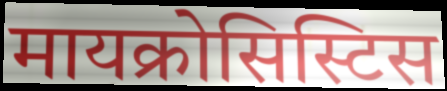
मायक्रोसिस्टिस